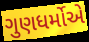
ગુણધર્મોએ